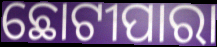
ଛୋଟୀପାରା